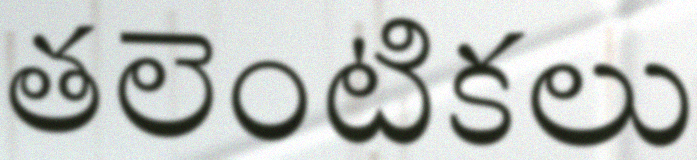
తలెంటికలు